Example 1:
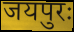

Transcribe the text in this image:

जयपुरः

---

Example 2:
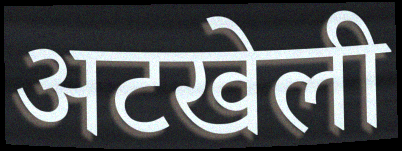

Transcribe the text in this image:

अटखेली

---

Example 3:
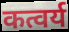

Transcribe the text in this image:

कत्वर्य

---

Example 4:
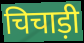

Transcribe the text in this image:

चिचाड़ी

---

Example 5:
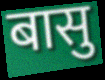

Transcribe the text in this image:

बासु